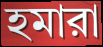
হমারা